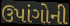
ઉપાંગોની